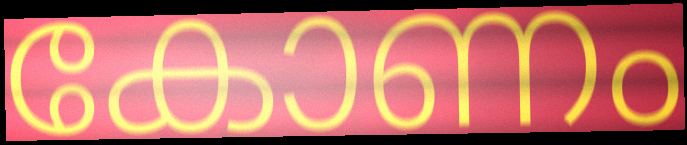
കോണം